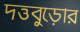
দত্তবুড়োর